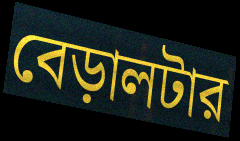
বেড়ালটার